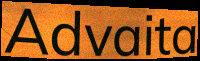
Advaita